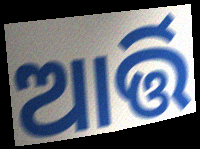
ଆର୍ତ୍ତି